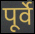
पूर्वे